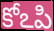
కోఽపి